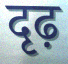
दृढ़